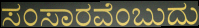
ಸಂಸಾರವೆಂಬುದು